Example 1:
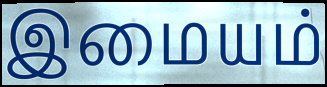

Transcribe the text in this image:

இமையம்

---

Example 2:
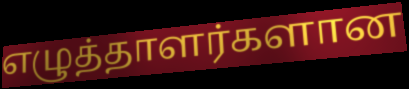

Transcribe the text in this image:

எழுத்தாளர்களான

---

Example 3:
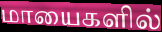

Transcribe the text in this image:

மாயைகளில்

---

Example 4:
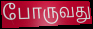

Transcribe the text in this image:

போருவது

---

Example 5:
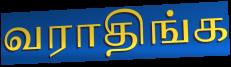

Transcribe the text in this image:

வராதிங்க